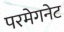
परमेगनेट